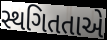
સ્થગિતતાએ